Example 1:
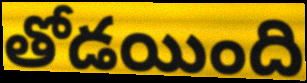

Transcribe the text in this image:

తోడయింది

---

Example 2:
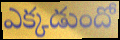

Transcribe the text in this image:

ఎక్కడుందో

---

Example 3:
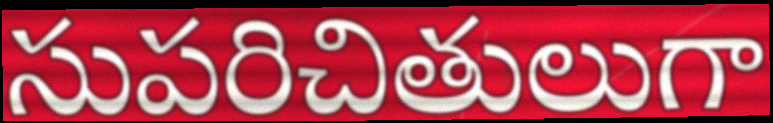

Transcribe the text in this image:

సుపరిచితులుగా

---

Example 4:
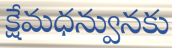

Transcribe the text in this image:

క్షేమధన్వునకు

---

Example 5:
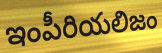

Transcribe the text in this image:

ఇంపీరియలిజం